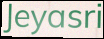
Jeyasri